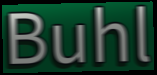
Buhl